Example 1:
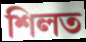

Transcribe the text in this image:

শিলত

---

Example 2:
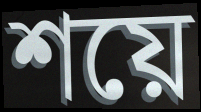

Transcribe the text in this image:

শয়ে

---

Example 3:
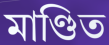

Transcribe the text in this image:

মাণ্ডিত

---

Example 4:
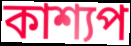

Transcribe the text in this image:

কাশ্যপ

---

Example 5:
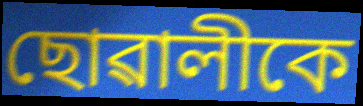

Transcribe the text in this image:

ছোৱালীকে